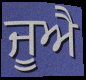
ਜੂਐ